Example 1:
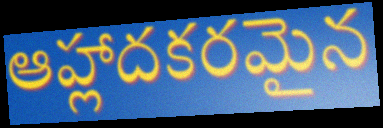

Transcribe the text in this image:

ఆహ్లాదకరమైన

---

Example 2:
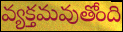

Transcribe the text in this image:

వ్యక్తమవుతోంది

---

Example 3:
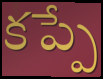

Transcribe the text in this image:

కప్పే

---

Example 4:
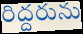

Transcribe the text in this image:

రిద్దరును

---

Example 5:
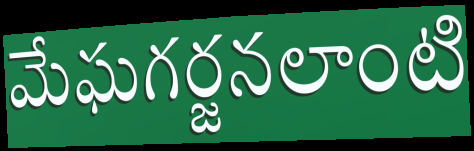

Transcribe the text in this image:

మేఘగర్జనలాంటి